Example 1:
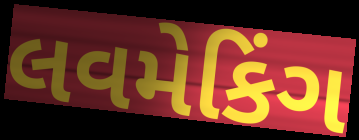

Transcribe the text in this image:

લવમેકિંગ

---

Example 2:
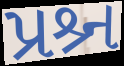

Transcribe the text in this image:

પ્રશ્ર્ન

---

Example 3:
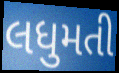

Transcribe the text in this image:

લધુમતી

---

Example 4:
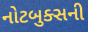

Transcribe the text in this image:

નોટબુક્સની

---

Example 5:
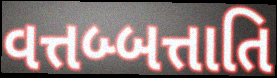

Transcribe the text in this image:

વત્તબ્બત્તાતિ